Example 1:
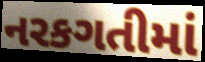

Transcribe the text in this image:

નરકગતીમાં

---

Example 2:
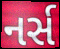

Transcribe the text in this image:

નર્સ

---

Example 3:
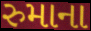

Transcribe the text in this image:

રુમાના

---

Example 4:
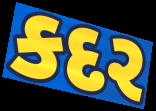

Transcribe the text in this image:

કદર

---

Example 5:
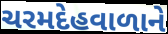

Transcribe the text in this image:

ચરમદેહવાળાને